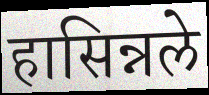
हासिन्नले